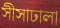
সীসাঢালা